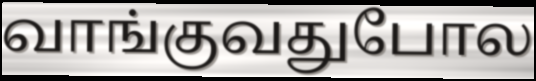
வாங்குவதுபோல